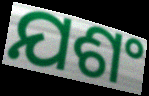
ଯଶଂ